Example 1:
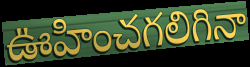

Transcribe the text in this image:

ఊహించగలిగినా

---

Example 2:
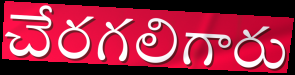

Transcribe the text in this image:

చేరగలిగారు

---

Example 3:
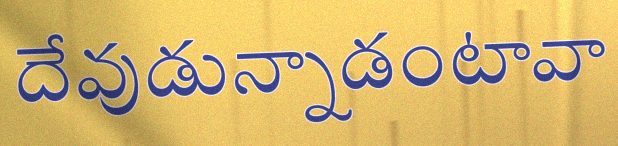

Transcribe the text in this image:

దేవుడున్నాడంటావా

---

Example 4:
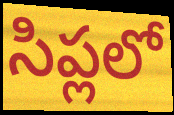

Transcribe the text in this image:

సిప్లలో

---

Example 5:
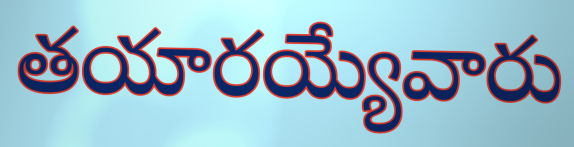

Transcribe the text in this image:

తయారయ్యేవారు